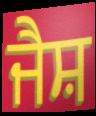
ਜੈਸ਼